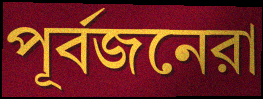
পূর্বজনেরা